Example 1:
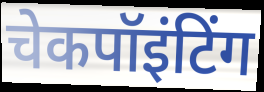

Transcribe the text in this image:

चेकपॉइंटिंग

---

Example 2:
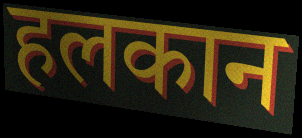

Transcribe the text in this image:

हलकान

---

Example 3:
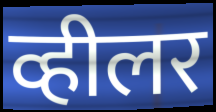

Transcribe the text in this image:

व्हीलर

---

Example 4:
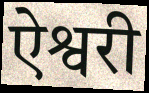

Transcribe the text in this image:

ऐश्वरी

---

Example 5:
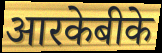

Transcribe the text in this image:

आरकेबीके